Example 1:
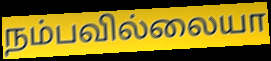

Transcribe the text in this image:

நம்பவில்லையா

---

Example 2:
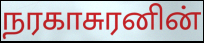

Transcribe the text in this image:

நரகாசுரனின்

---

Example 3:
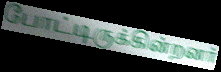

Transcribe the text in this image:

போட்டிருக்கின்றனர்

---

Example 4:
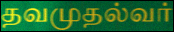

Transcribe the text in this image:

தவமுதல்வர்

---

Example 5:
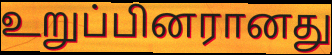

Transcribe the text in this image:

உறுப்பினரானது